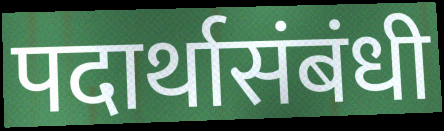
पदार्थासंबंधी